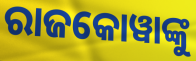
ରାଜକୋୱାଙ୍କୁ